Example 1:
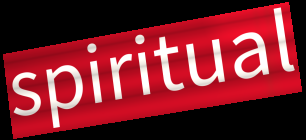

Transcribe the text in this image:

spiritual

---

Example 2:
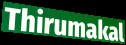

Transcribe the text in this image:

Thirumakal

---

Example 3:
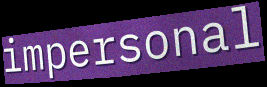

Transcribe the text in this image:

impersonal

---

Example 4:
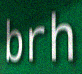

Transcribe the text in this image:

brh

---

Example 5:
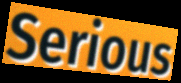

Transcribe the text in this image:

Serious